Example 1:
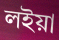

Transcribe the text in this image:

লইয়া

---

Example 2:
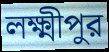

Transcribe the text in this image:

লক্ষ্মীপুর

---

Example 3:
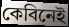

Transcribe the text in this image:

কেবিনেই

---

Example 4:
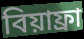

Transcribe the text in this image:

বিয়াফ্রা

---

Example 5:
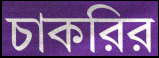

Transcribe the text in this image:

চাকরির